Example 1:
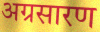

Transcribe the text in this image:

अग्रसारण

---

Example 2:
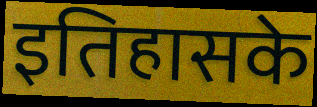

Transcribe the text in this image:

इतिहासके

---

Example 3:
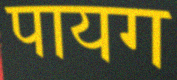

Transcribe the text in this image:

पायग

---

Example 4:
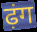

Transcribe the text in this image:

ढ़ंग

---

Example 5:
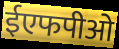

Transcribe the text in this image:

ईएफपीओ